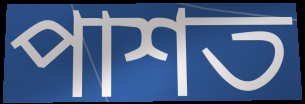
পাশত